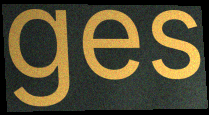
ges